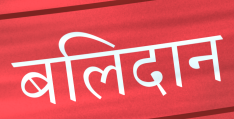
बलिदान